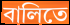
বালিতে